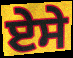
ਏਸੇ